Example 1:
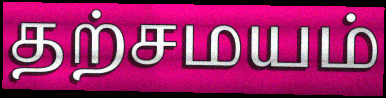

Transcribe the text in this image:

தற்சமயம்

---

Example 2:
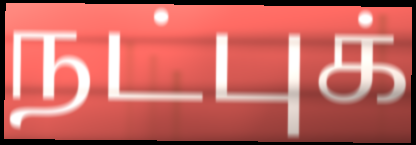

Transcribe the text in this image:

நட்புக்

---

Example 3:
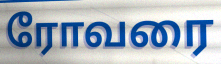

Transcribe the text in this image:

ரோவரை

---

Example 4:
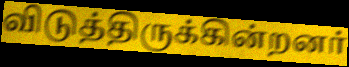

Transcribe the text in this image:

விடுத்திருக்கின்றனர்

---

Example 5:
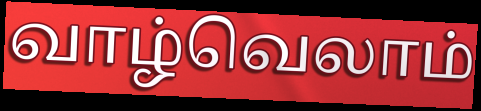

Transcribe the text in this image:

வாழ்வெலாம்